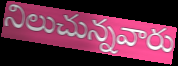
నిలుచున్నవారు